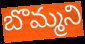
బొమ్మని